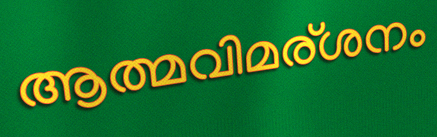
ആത്മവിമര്ശനം